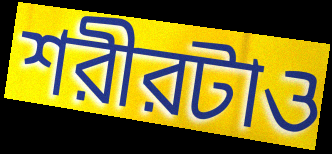
শরীরটাও